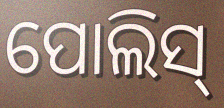
ପୋଲିସ୍